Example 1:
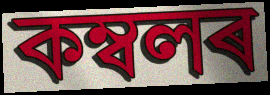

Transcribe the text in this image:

কম্বলৰ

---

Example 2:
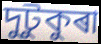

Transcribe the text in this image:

দুটুকুৰা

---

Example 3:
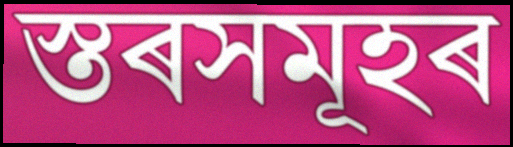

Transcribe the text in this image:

স্তৰসমূহৰ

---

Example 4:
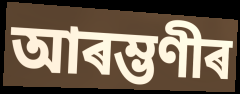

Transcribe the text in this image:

আৰম্ভণীৰ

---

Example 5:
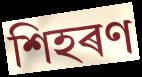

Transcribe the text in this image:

শিহৰণ